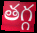
తగ్గ